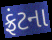
ફ્રંટના